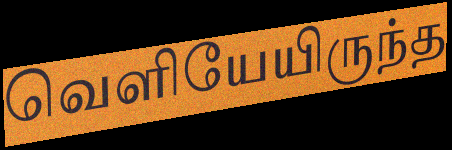
வெளியேயிருந்த